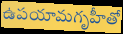
ఉపయామగృహీతో